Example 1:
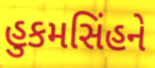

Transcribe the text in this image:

હુકમસિંહને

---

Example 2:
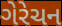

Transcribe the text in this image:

ગેરેચન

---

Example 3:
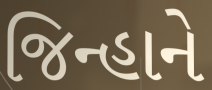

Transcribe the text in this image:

જિન્હાને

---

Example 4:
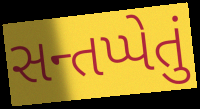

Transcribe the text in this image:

સન્તપ્પેતું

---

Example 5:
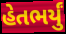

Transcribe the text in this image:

હેતભર્યું